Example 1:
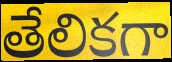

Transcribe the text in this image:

తేలికగా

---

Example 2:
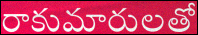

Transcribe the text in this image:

రాకుమారులతో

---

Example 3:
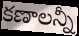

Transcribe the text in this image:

కణాలన్నీ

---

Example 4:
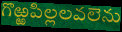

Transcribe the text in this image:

గొఱ్ఱపిల్లలవలెను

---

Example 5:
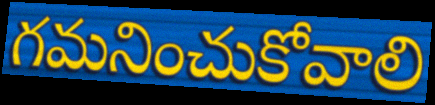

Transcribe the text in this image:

గమనించుకోవాలి